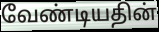
வேண்டியதின்